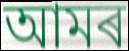
আমৰ